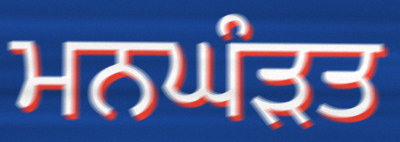
ਮਨਘੰੜਤ